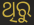
ଥିରୁ